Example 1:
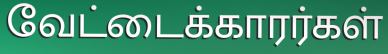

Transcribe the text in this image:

வேட்டைக்காரர்கள்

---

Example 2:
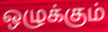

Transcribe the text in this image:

ஒழுக்கும்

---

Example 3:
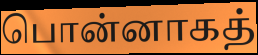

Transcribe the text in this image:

பொன்னாகத்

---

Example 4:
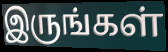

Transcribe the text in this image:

இருங்கள்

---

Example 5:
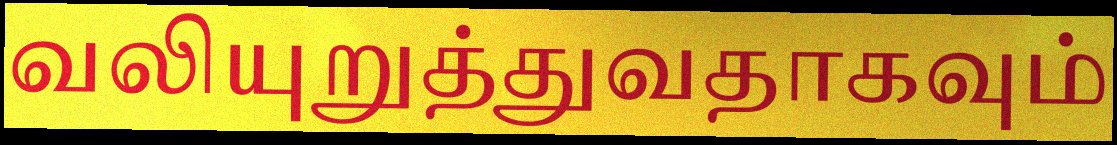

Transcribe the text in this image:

வலியுறுத்துவதாகவும்